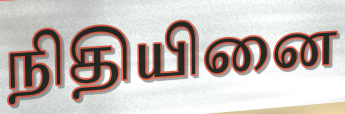
நிதியினை